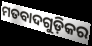
ମତବାଦଗୁଡ଼ିକର